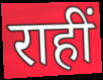
राहीं